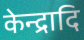
केन्द्रादि